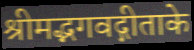
श्रीमद्भगवद्गीताके